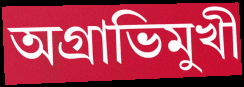
অগ্রাভিমুখী